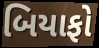
બિયાફો